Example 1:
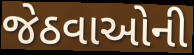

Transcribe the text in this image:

જેઠવાઓની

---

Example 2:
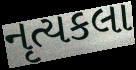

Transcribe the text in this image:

નૃત્યકલા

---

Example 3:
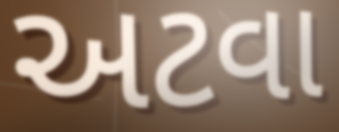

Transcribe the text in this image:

અટવા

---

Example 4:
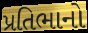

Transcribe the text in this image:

પ્રતિભાનો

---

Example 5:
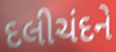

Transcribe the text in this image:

દલીચંદને